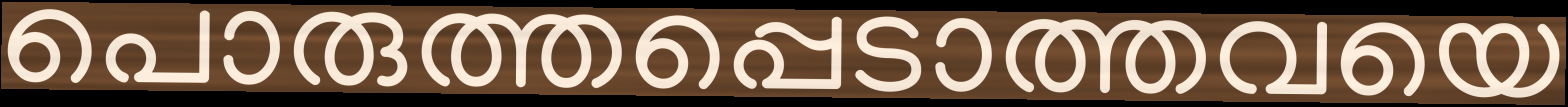
പൊരുത്തപ്പെടാത്തവയെ